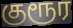
குரூர